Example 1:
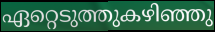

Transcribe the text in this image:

ഏറ്റെടുത്തുകഴിഞ്ഞു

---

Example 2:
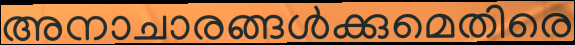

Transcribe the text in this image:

അനാചാരങ്ങൾക്കുമെതിരെ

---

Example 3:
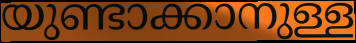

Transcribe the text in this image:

യുണ്ടാക്കാനുള്ള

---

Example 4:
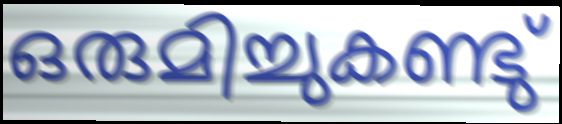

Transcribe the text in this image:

ഒരുമിച്ചുകണ്ടു്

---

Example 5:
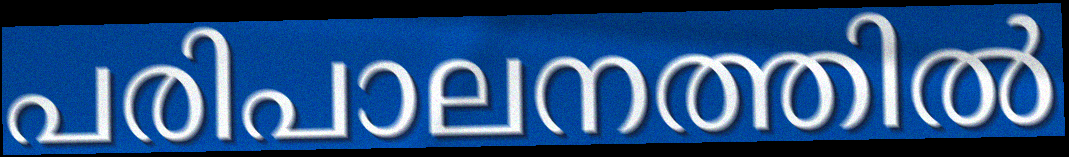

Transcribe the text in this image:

പരിപാലനത്തിൽ